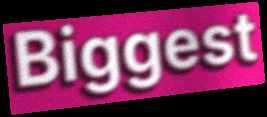
Biggest